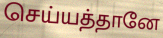
செய்யத்தானே